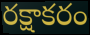
రక్షాకరం